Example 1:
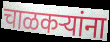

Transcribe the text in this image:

चाळकऱ्यांना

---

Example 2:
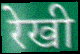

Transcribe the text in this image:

रेखी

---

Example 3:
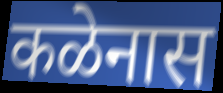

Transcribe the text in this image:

कळेनास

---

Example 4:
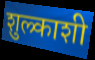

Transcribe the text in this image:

शुल्काशी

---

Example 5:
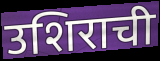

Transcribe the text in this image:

उशिराची